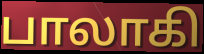
பாலாகி